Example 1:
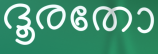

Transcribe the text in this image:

ദൂരതോ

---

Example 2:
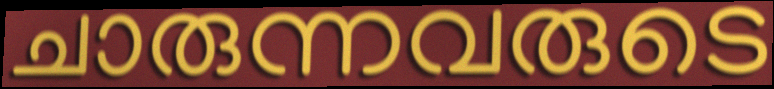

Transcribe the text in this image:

ചാരുന്നവരുടെ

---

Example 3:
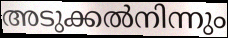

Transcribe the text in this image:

അടുക്കൽനിന്നും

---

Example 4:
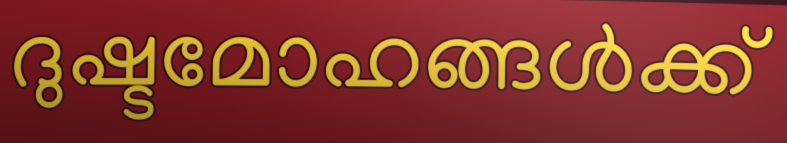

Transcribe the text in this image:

ദുഷ്ടമോഹങ്ങൾക്ക്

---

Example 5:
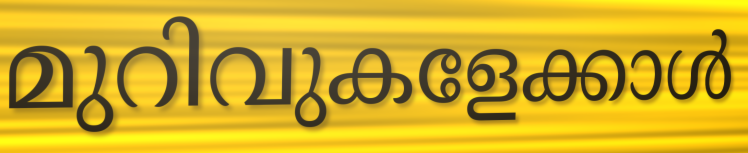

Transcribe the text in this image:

മുറിവുകളേക്കാൾ